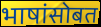
भाषांसोबत